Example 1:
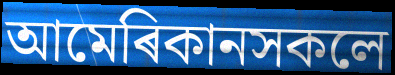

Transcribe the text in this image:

আমেৰিকানসকলে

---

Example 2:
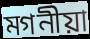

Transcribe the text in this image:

মগনীয়া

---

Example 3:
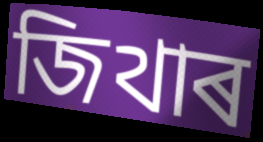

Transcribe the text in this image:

জিথাৰ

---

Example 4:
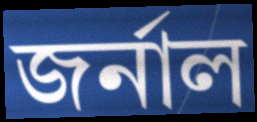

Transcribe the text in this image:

জৰ্নাল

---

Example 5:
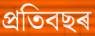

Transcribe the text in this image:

প্ৰতিবছৰ